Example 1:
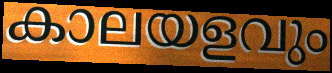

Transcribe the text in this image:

കാലയളവും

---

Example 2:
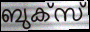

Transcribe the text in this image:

ബുക്സ്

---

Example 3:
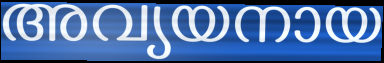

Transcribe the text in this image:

അവ്യയനായ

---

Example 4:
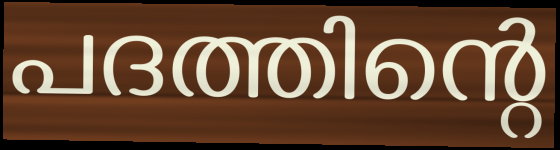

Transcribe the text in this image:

പദത്തിന്റെ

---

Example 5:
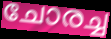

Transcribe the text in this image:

ചോരച്ച